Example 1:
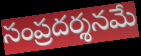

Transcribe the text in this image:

సంప్రదర్శనమే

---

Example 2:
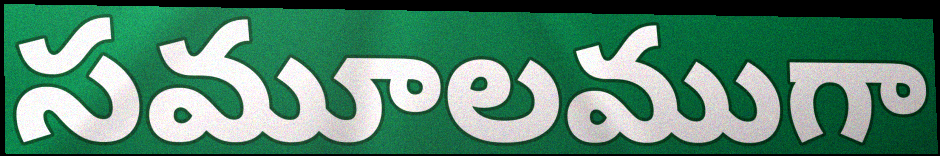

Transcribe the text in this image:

సమూలముగా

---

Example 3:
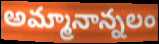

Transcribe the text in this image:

అమ్మానాన్నలం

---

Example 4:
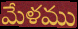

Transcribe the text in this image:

మేళము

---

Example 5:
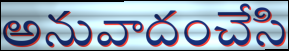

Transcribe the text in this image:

అనువాదంచేసి